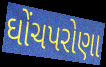
ઘોંચપરોણા